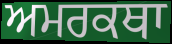
ਅਮਰਕਥਾ